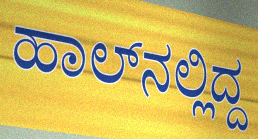
ಹಾಲ್‌ನಲ್ಲಿದ್ದ